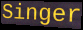
Singer